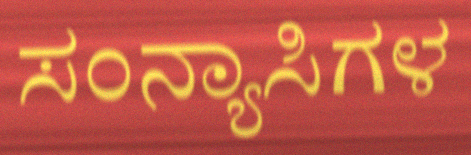
ಸಂನ್ಯಾಸಿಗಳ